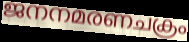
ജനനമരണചക്രം